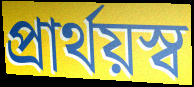
প্রার্থয়স্ব